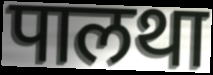
पालथा